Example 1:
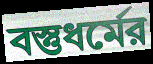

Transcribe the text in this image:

বস্তুধর্মের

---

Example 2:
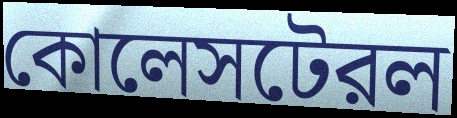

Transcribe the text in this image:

কোলেসটেরল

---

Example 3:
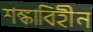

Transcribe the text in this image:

শঙ্কাবিহীন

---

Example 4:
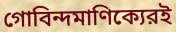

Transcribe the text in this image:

গোবিন্দমাণিক্যেরই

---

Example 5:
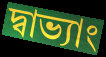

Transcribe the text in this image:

দ্বাভ্যাং